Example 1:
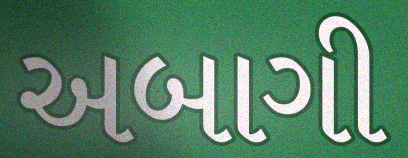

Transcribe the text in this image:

અબાગી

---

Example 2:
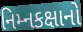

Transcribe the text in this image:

નિમ્નકક્ષાનો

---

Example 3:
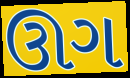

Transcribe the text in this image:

ઊગ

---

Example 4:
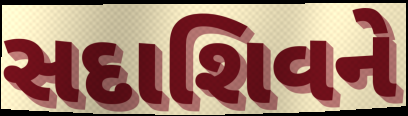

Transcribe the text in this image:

સદાશિવને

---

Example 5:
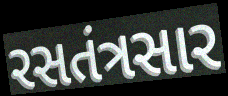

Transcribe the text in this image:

રસતંત્રસાર